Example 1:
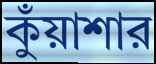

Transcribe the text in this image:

কুঁয়াশার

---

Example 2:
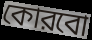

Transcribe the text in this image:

কোরবো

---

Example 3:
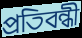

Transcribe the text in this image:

প্রতিবন্ধী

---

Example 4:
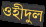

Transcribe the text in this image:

ওহীদুল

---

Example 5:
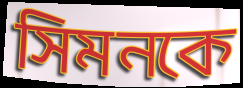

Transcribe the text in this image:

সিমনকে